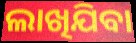
ଲାଖିଯିବା